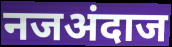
नजअंदाज